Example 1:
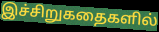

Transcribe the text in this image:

இச்சிறுகதைகளில்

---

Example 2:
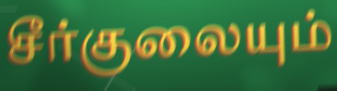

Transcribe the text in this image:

சீர்குலையும்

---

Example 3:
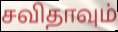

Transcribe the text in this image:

சவிதாவும்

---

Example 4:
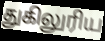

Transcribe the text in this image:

துகிலுரிய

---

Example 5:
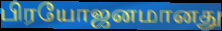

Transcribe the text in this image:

பிரயோஜனமானது